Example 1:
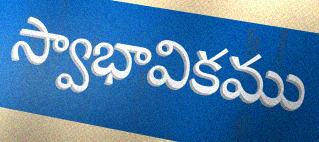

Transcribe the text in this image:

స్వాభావికము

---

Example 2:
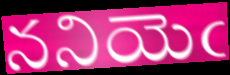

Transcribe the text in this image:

ననియెఁ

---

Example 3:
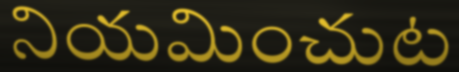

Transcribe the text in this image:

నియమించుట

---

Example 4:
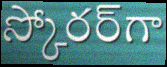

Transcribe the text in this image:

స్కోరర్‌గా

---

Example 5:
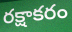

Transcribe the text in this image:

రక్షాకరం